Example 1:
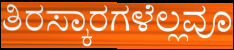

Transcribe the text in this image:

ತಿರಸ್ಕಾರಗಳೆಲ್ಲವೂ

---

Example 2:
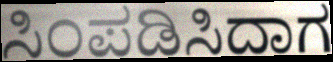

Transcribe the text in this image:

ಸಿಂಪಡಿಸಿದಾಗ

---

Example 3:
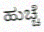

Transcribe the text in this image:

ಹುಚ್ಚೆ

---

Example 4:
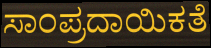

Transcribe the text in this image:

ಸಾಂಪ್ರದಾಯಿಕತೆ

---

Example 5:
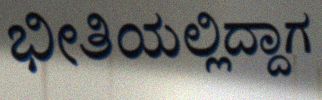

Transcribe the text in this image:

ಭೀತಿಯಲ್ಲಿದ್ದಾಗ